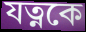
যত্নকে